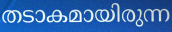
തടാകമായിരുന്ന